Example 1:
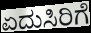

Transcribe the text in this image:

ಏದುಸಿರಿಗೆ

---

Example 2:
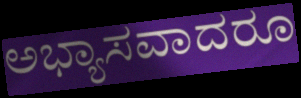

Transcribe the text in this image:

ಅಭ್ಯಾಸವಾದರೂ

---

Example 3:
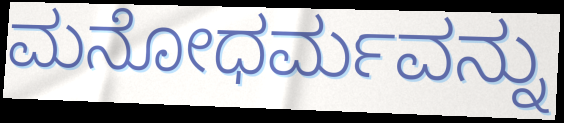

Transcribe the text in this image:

ಮನೋಧರ್ಮವನ್ನು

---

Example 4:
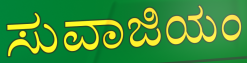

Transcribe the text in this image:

ಸುವಾಜಿಯಂ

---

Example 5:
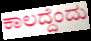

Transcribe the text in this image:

ಕಾಲದ್ದೆಂದು